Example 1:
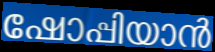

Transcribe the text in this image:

ഷോപ്പിയാൻ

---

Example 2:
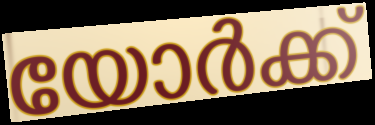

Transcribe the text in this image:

യോർക്ക്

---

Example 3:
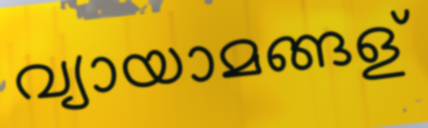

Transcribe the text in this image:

വ്യായാമങ്ങള്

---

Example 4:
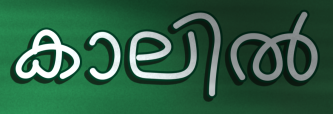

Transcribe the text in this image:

കാലിൽ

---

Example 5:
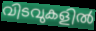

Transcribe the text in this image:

വിടവുകളിൽ